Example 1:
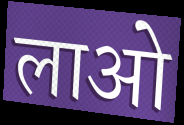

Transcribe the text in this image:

लाओ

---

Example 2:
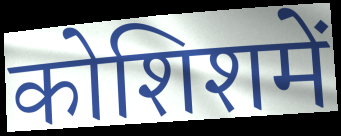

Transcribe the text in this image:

कोशिशमें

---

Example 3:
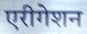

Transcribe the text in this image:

एरीगेशन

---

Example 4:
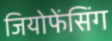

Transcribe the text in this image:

जियोफेंसिंग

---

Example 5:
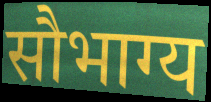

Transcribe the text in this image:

सौभाग्य